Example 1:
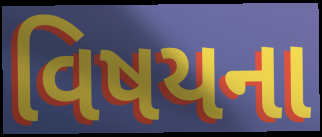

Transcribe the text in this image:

વિષયના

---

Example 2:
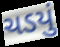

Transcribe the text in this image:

ચડયું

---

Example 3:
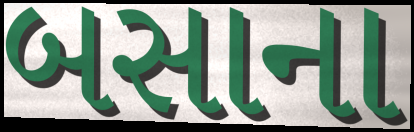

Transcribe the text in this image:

બસાના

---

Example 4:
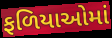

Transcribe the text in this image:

ફળિયાઓમાં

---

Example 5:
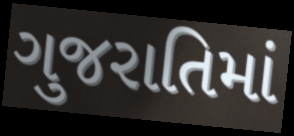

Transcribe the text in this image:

ગુજરાતિમાં